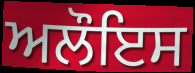
ਅਲੌਇਸ